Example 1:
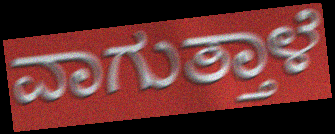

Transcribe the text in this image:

ವಾಗುತ್ತಾಳೆ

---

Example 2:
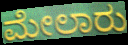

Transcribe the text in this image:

ಮೇಲಾರು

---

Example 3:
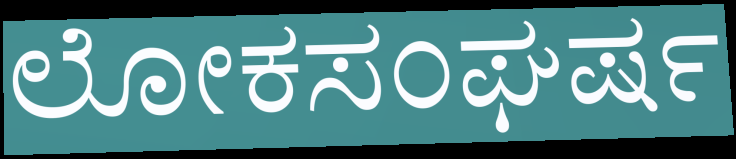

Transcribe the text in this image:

ಲೋಕಸಂಘರ್ಷ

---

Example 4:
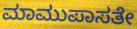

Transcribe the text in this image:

ಮಾಮುಪಾಸತೇ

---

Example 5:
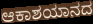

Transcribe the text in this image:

ಆಕಾಶಯಾನದ